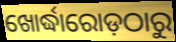
ଖୋର୍ଦ୍ଧାରୋଡ଼ଠାରୁ